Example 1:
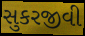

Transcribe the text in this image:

સુકરજીવી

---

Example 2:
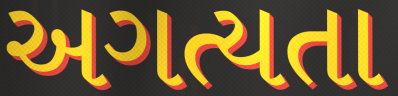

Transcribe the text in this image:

અગત્યતા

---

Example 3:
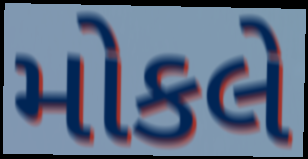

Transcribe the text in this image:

મોકલે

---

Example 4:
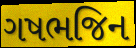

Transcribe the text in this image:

ગષભજિન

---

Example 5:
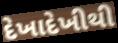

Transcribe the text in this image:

દેખાદેખીથી